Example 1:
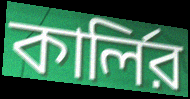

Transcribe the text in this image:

কার্লির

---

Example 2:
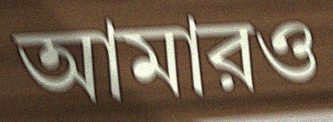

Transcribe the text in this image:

আমারও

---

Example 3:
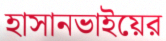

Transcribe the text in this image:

হাসানভাইয়ের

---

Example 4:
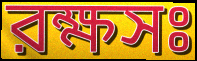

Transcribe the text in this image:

রক্ষসঃ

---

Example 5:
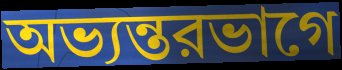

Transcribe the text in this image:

অভ্যন্তরভাগে